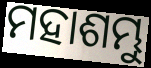
ମହାଶମ୍ଭୁ